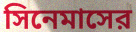
সিনেমাসের